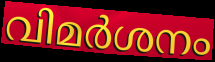
വിമർശനം